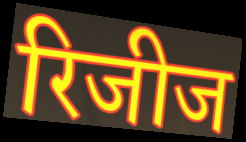
रिजीज